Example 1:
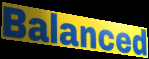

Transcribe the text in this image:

Balanced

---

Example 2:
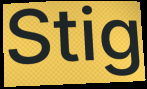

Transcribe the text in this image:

Stig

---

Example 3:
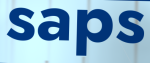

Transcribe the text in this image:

saps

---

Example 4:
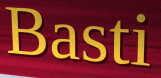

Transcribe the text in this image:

Basti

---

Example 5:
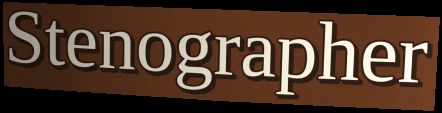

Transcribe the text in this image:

Stenographer